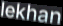
lekhan